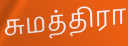
சுமத்திரா